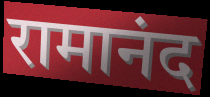
रामानंद